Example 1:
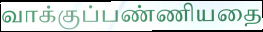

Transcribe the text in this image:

வாக்குப்பண்ணியதை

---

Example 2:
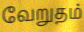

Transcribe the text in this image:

வேறுதம்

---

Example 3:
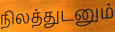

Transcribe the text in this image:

நிலத்துடனும்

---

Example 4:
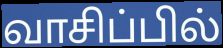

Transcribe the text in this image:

வாசிப்பில்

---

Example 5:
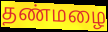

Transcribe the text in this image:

தண்மழை